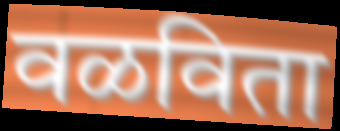
वळविता